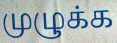
முழுக்க